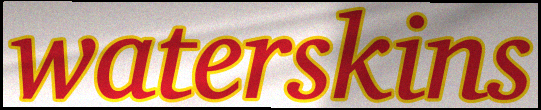
waterskins